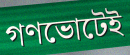
গণভোটেই